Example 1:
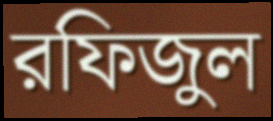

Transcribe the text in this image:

রফিজুল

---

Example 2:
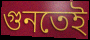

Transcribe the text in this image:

গুনতেই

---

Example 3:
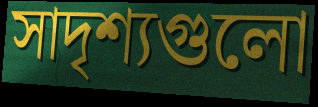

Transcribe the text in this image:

সাদৃশ্যগুলো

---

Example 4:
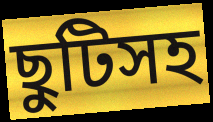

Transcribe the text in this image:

ছুটিসহ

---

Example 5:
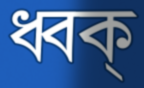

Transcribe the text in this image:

ধ্বক্